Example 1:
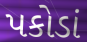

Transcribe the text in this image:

પકોડાં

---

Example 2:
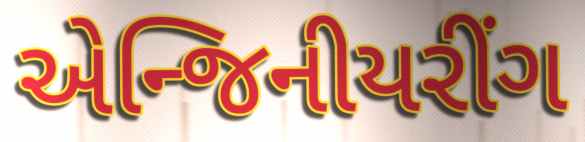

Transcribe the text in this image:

એન્જિનીયરીંગ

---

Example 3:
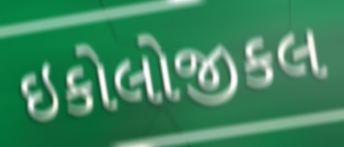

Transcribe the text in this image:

ઇકોલોજીકલ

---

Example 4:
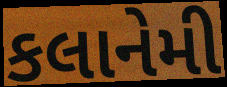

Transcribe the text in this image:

કલાનેમી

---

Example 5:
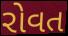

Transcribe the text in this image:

રોવત